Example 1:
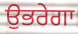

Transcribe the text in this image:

ਉਭਰੇਗਾ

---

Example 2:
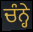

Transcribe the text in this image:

ਚੰਨ੍ਹੇ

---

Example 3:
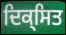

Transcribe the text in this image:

ਦਿਕ੍ਸਿਤ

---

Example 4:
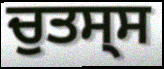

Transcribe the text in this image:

ਚੁਤਸ੍ਸ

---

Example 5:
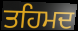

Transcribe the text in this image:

ਤਹਿਮਦ